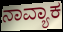
ನಾವ್ಯಾಕ